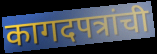
कागदपत्रांची